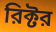
রিক্টর